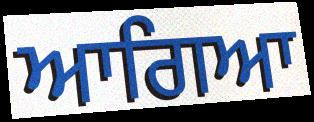
ਆਗਿਆ